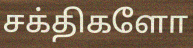
சக்திகளோ